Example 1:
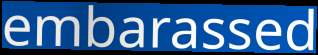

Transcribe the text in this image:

embarassed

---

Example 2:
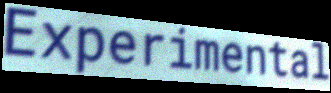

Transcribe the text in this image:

Experimental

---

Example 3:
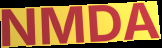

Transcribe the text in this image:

NMDA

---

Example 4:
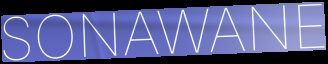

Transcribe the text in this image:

SONAWANE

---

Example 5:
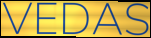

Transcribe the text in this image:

VEDAS